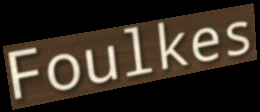
Foulkes